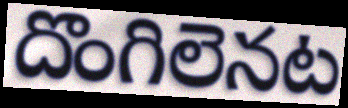
దొంగిలెనట